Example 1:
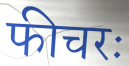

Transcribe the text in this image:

फीचरः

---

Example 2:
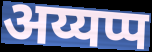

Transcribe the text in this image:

अय्यप्प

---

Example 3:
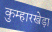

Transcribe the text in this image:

कुम्हारखेड़ा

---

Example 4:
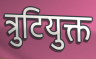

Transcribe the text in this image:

त्रुटियुक्त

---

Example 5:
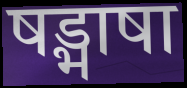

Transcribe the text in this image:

षड्भाषा